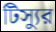
টিস্যুর